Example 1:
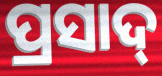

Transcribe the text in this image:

ପ୍ରସାଦ୍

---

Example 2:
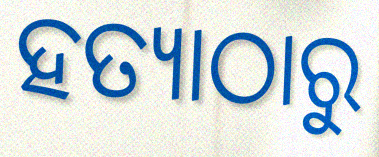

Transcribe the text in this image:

ହତ୍ୟାଠାରୁ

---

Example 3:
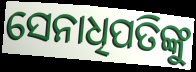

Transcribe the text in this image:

ସେନାଧିପତିଙ୍କୁ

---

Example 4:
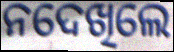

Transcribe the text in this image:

ନଦେଖିଲେ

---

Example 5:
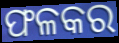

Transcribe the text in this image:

ଫଳକର